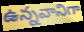
ఉన్నవానిగా